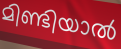
മിണ്ടിയാൽ